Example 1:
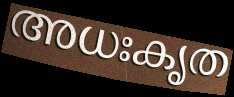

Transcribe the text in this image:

അധഃകൃത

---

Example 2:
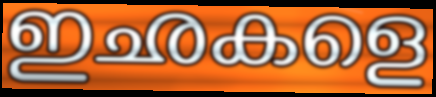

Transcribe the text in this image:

ഇഛകളെ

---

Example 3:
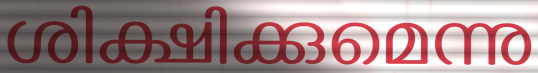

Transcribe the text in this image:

ശിക്ഷിക്കുമെന്നു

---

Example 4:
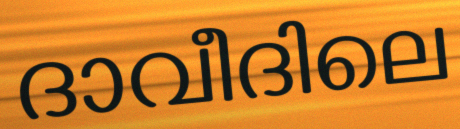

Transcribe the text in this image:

ദാവീദിലെ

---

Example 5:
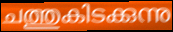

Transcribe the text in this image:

ചത്തുകിടക്കുന്നു